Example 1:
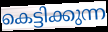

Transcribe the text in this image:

കെട്ടിക്കുന്ന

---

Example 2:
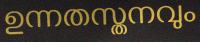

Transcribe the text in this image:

ഉന്നതസ്തനവും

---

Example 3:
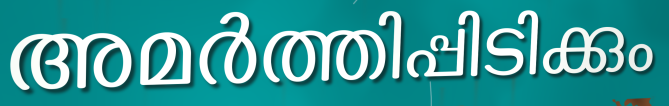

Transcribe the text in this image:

അമർത്തിപ്പിടിക്കും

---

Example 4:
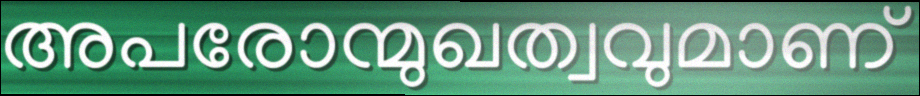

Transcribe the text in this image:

അപരോന്മുഖത്വവുമാണ്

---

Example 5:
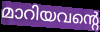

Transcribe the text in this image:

മാറിയവന്റെ